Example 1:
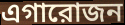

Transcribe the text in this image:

এগারোজন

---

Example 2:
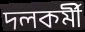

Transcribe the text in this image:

দলকর্মী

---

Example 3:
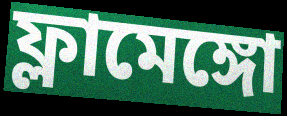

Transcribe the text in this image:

ফ্লামেঙ্গো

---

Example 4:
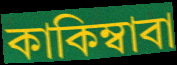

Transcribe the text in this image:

কাকিম্বাবা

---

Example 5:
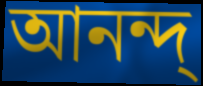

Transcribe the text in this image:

আনন্দ্